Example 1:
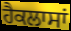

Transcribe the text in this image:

ਹੈਕਲਾਸਾਂ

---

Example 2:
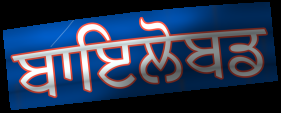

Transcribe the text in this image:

ਬਾਇਲੋਬਡ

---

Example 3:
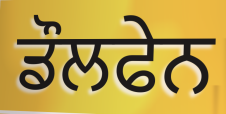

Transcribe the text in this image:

ਡੌਲਫੇਨ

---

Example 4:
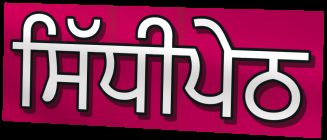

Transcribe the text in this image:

ਸਿੱਧੀਪੇਠ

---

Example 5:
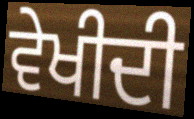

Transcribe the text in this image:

ਵੇਖੀਦੀ